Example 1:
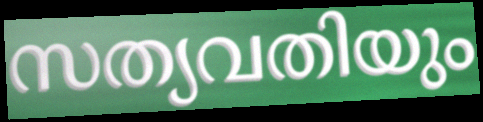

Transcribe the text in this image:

സത്യവതിയും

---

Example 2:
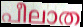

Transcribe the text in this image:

പീലാത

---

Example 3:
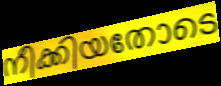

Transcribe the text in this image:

നീക്കിയതോടെ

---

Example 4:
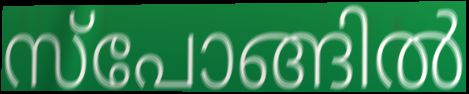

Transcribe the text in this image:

സ്പോങ്ങിൽ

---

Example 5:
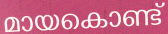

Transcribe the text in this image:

മായകൊണ്ട്